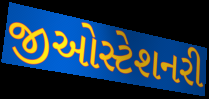
જીઓસ્ટેશનરી